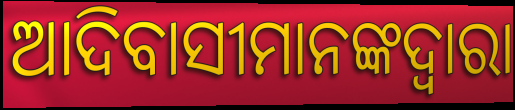
ଆଦିବାସୀମାନଙ୍କଦ୍ୱାରା